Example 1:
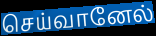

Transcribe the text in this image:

செய்வானேல்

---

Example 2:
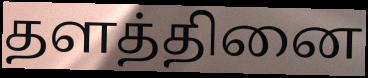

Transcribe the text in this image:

தளத்தினை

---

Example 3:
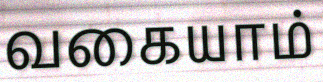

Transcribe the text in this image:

வகையாம்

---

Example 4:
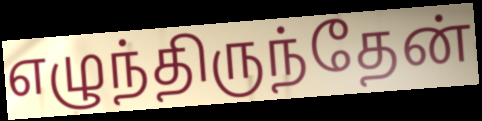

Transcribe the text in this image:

எழுந்திருந்தேன்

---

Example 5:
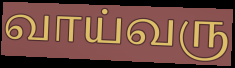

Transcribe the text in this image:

வாய்வரு